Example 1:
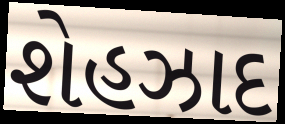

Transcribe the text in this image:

શેહઝાદ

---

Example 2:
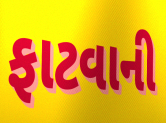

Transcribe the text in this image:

ફાટવાની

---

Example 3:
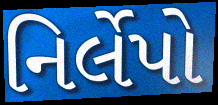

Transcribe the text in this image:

નિર્લેપો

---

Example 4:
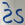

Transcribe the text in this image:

ટેડ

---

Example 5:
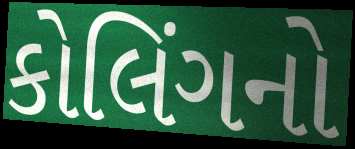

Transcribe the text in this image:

કોલિંગનો